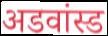
अडवांस्ड